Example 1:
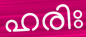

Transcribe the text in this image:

ഹരിഃ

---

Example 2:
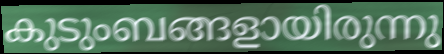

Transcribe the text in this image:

കുടുംബങ്ങളായിരുന്നു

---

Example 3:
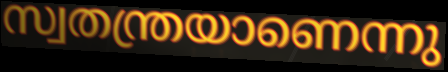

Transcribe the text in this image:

സ്വതന്ത്രയാണെന്നു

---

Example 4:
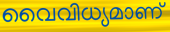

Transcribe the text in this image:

വൈവിധ്യമാണ്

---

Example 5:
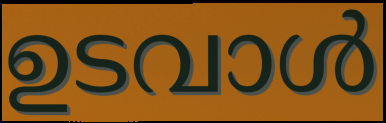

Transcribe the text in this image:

ഉടവാൾ